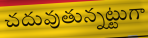
చదువుతున్నట్టుగా